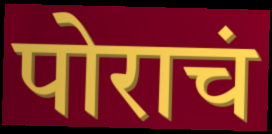
पोराचं